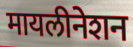
मायलीनेशन